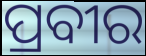
ପ୍ରବୀର